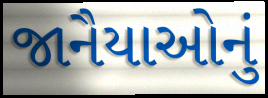
જાનૈયાઓનું